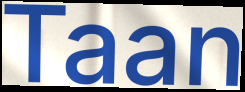
Taan